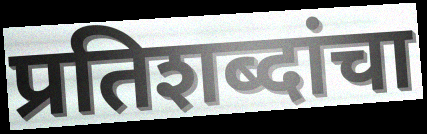
प्रतिशब्दांचा